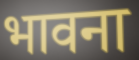
भावना